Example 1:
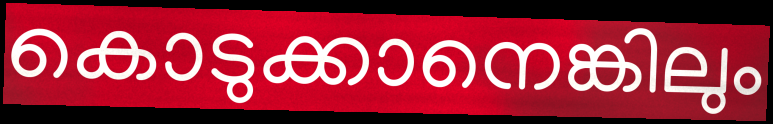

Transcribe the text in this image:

കൊടുക്കാനെങ്കിലും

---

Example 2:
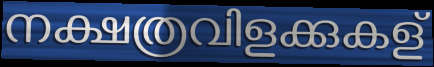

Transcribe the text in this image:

നക്ഷത്രവിളക്കുകള്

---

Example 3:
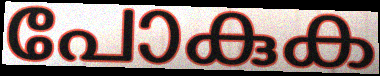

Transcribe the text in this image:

പോകുക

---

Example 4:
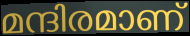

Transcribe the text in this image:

മന്ദിരമാണ്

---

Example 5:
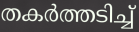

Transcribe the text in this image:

തകർത്തടിച്ച്